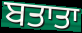
ਬਤਾਤਾ